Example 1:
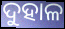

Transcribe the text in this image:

ଦୁହାଳ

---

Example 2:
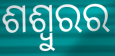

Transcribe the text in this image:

ଶଶ୍ୱୁରର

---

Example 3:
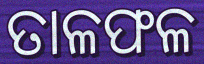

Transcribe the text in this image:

ତାଳଫଳ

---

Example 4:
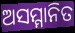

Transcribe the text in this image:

ଅସମ୍ମାନିତ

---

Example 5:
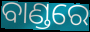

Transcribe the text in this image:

ବାଣ୍ଡରେ